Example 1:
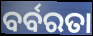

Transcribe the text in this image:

ବର୍ବରତା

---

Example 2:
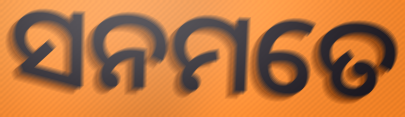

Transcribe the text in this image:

ସନମତେ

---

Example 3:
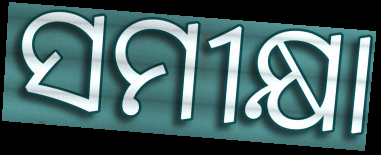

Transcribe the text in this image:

ସମୀକ୍ଷା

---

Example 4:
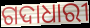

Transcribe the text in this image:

ଗଦାଧାରୀ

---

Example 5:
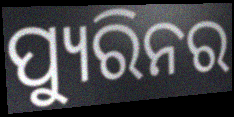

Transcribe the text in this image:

ପ୍ୟୁରିନର